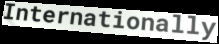
Internationally